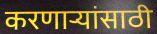
करणार्‍यांसाठी